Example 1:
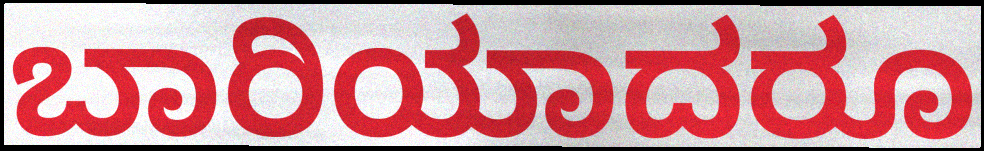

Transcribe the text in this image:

ಬಾರಿಯಾದರೂ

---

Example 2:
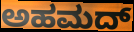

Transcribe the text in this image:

ಅಹಮದ್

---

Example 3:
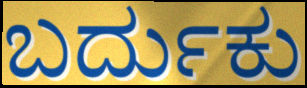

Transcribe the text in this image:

ಬರ್ದುಕು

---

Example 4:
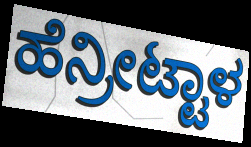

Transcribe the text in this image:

ಹೆನ್ರೀಟ್ಟಾಳ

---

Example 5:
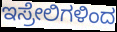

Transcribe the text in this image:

ಇಸ್ರೇಲಿಗಳಿಂದ